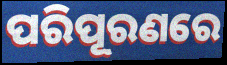
ପରିପୂରଣରେ